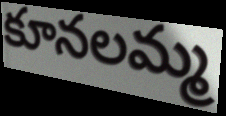
కూనలమ్మ